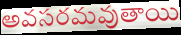
అవసరమవుతాయి